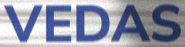
VEDAS